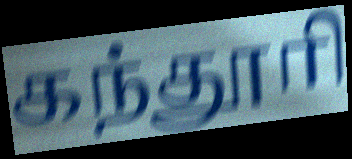
கந்தூரி